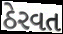
ઠેરવત